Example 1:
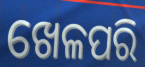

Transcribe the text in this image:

ଖେଳପରି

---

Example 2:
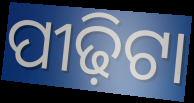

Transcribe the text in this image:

ପୀଢ଼ିଟା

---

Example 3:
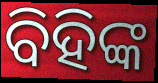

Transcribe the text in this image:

ବିହିଙ୍କ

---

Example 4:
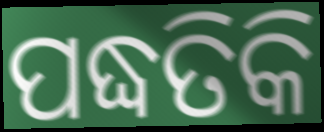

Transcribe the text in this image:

ପଦ୍ଧତିକି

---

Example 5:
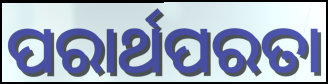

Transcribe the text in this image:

ପରାର୍ଥପରତା